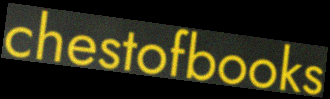
chestofbooks